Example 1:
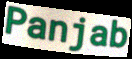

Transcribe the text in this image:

Panjab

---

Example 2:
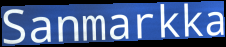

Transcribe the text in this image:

Sanmarkka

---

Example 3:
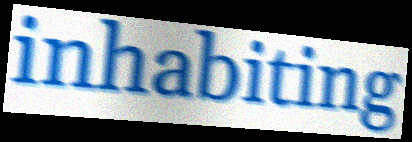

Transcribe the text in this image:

inhabiting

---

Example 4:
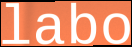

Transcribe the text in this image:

labo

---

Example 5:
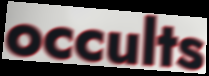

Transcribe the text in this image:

occults